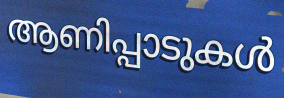
ആണിപ്പാടുകൾ